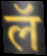
लॅ